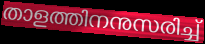
താളത്തിനനുസരിച്ച്